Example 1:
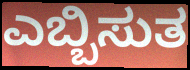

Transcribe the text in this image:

ಎಬ್ಬಿಸುತ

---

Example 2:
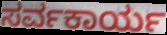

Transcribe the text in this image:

ಸರ್ವಕಾರ್ಯ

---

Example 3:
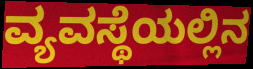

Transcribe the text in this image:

ವ್ಯವಸ್ಥೆಯಲ್ಲಿನ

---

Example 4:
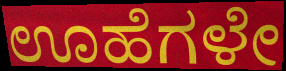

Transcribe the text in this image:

ಊಹೆಗಳೇ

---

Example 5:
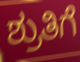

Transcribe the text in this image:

ಶ್ರುತಿಗೆ